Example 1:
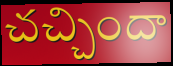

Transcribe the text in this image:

చచ్చిందా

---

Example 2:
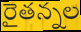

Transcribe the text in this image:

రైతన్నల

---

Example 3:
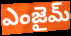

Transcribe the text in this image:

ఎంజైమ్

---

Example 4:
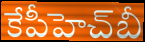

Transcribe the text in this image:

కేపీహెచ్‌బీ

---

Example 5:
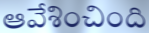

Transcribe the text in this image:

ఆవేశించింది